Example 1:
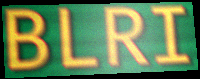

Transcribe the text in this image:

BLRI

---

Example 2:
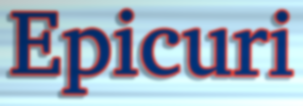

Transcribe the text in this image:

Epicuri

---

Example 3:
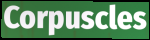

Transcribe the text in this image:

Corpuscles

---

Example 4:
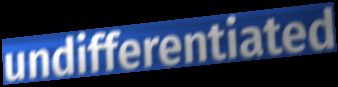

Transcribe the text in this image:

undifferentiated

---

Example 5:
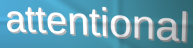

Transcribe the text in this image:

attentional